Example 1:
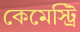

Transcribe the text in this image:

কেমেস্ট্রি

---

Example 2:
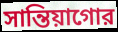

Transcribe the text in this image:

সান্তিয়াগোর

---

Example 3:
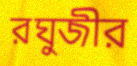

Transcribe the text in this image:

রঘুজীর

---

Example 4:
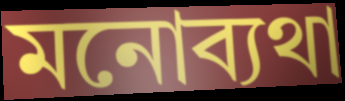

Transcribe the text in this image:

মনোব্যথা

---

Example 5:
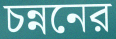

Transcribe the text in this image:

চন্ননের